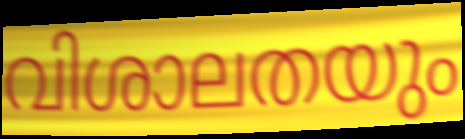
വിശാലതയും